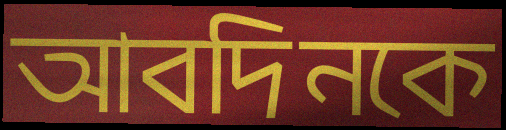
আবদিনকে